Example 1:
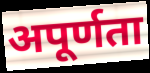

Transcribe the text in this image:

अपूर्णता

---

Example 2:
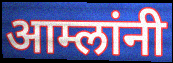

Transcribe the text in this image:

आम्लांनी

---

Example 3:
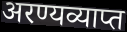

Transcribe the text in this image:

अरण्यव्याप्त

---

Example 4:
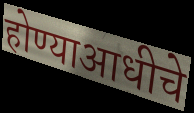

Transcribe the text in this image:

होण्याआधीचे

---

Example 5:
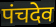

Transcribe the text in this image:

पंचदेव